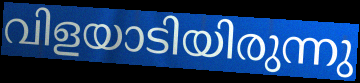
വിളയാടിയിരുന്നു